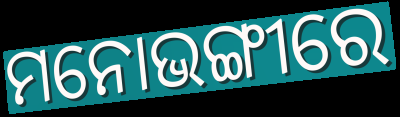
ମନୋଭଙ୍ଗୀରେ